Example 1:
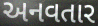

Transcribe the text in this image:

અનવતાર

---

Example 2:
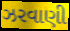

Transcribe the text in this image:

ઝરવાણી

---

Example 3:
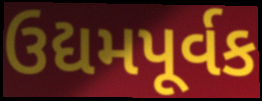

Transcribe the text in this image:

ઉદ્યમપૂર્વક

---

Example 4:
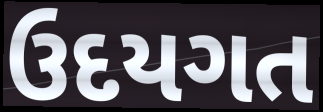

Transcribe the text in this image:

ઉદયગત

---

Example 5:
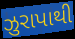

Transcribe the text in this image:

ઝુરાપાથી